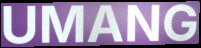
UMANG